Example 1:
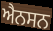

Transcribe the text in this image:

ਐਨਸਨ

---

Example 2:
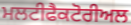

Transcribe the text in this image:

ਮਲਟੀਫੈਕਟੋਰੀਅਲ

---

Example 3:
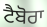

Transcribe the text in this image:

ਟੈਬੋਰਾ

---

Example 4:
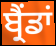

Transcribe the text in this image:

ਬ੍ਰੈਂਡਾਂ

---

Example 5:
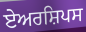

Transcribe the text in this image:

ਏਅਰਸ਼ਿਪਸ